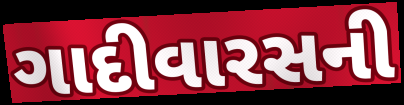
ગાદીવારસની